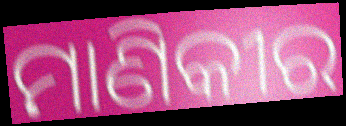
ମାଣିକୀର